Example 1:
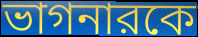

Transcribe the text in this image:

ভাগনারকে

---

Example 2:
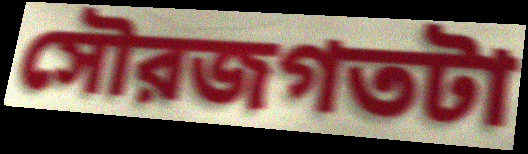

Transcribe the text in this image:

সৌরজগতটা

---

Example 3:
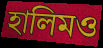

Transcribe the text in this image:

হালিমও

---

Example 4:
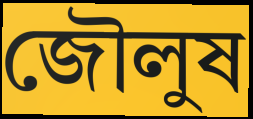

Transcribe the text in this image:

জৌলুষ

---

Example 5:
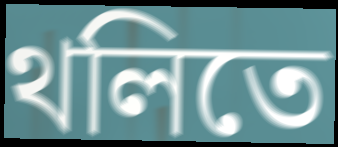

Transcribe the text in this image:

থলিতে